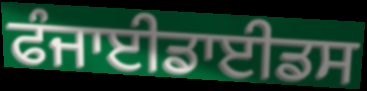
ਫੰਜਾਈਡਾਈਡਸ